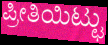
ಪ್ರೀತಿಯಿಟ್ಟು